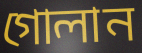
গোলান